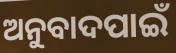
ଅନୁବାଦପାଇଁ